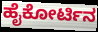
ಹೈಕೋರ್ಟಿನ